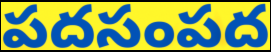
పదసంపద